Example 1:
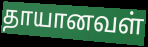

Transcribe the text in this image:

தாயானவள்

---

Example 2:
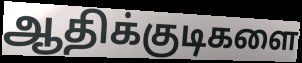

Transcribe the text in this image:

ஆதிக்குடிகளை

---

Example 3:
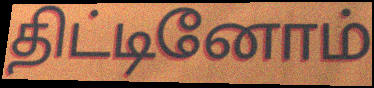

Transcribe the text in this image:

திட்டினோம்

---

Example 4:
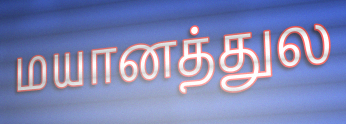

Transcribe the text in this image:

மயானத்துல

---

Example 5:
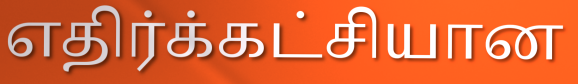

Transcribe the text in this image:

எதிர்க்கட்சியான